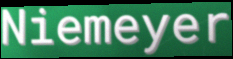
Niemeyer